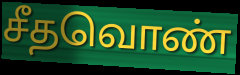
சீதவொண்